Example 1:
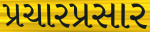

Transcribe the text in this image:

પ્રચારપ્રસાર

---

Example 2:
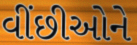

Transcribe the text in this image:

વીંછીઓને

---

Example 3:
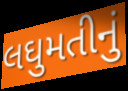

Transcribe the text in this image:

લઘુમતીનું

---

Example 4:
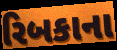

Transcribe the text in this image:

રિબકાના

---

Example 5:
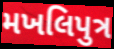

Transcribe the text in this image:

મખલિપુત્ર